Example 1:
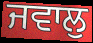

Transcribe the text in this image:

ਜਵਾਲੁ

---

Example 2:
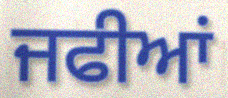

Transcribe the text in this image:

ਜਫੀਆਂ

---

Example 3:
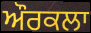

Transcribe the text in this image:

ਔਰਕਲਾ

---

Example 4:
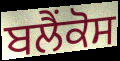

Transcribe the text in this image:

ਬਲੈਂਕੋਸ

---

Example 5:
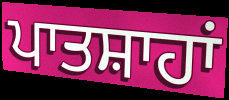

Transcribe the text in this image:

ਪਾਤਸ਼ਾਹਾਂ